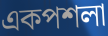
একপশলা